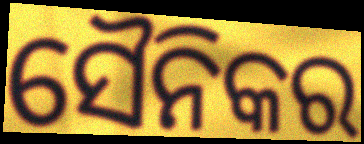
ସୈନିକର